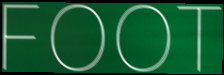
FOOT